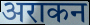
अराकन